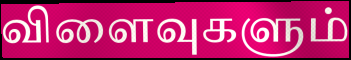
விளைவுகளும்